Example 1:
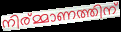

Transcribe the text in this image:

നിര്മ്മാണത്തിന്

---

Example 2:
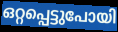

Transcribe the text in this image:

ഒറ്റപ്പെട്ടുപോയി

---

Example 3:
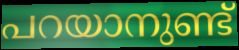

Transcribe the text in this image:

പറയാനുണ്ട്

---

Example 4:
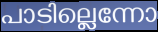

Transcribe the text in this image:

പാടില്ലെന്നോ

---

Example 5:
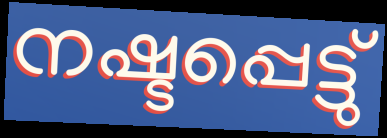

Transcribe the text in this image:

നഷ്ടപ്പെട്ടു്